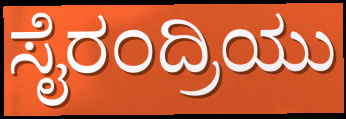
ಸೈರಂದ್ರಿಯು